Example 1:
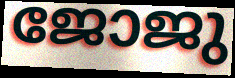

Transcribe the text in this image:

ജോജു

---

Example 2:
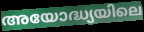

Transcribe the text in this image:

അയോദ്ധ്യയിലെ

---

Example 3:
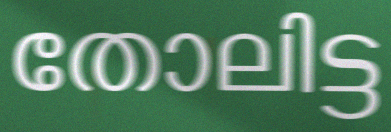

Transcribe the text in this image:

തോലിട്ട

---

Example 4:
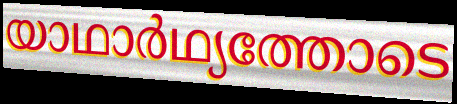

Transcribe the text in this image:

യാഥാർഥ്യത്തോടെ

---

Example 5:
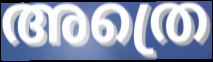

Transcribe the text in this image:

അത്രെ